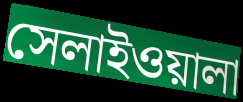
সেলাইওয়ালা